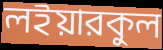
লইয়ারকুল